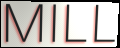
MILL